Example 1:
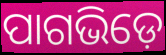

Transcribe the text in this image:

ପାଗଭିଡ଼େ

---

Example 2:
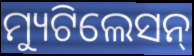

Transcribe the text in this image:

ମ୍ୟୁଟିଲେସନ୍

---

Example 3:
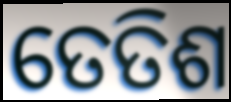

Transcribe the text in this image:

ତେତିଶ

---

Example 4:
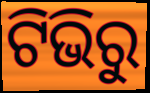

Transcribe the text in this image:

ଟିଭିରୁ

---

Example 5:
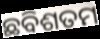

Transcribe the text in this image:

ଛବିଶତମ